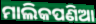
ମାଲିକପଣିଆ